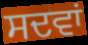
ਸਦਵਾਂ